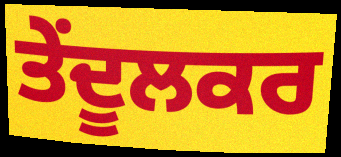
ਤੇਂਦੂਲਕਰ